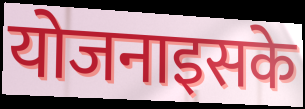
योजनाइसके